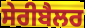
ਸੇਰੀਬੈਲਰ